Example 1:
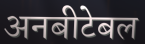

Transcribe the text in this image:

अनबीटेबल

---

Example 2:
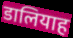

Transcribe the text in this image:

डालियाह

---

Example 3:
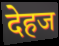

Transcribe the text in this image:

देहज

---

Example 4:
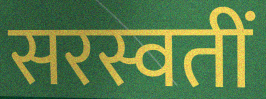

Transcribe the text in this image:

सरस्वतीं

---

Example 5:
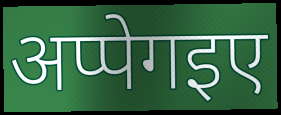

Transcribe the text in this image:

अप्पेगइए